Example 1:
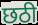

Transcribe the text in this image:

छठी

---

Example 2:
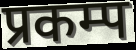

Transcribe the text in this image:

प्रकम्प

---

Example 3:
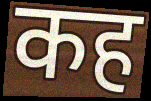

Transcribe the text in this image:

कह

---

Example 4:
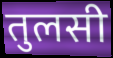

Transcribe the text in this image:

तुलसी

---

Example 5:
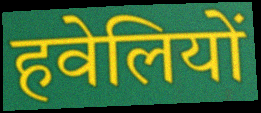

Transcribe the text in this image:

हवेलियों